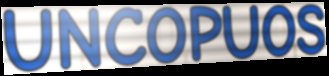
UNCOPUOS